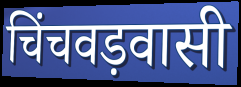
चिंचवड़वासी